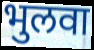
भुलवा